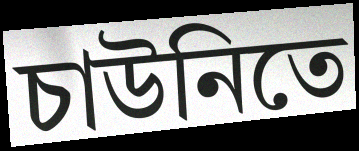
চাউনিতে